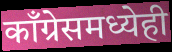
काँग्रेसमध्येही